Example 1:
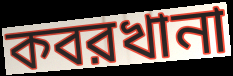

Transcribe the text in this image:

কবরখানা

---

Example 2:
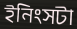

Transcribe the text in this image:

ইনিংসটা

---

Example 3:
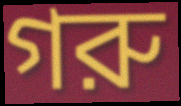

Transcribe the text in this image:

গরু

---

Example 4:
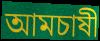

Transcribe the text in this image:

আমচাষী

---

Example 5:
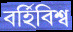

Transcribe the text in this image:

বর্হিবিশ্ব